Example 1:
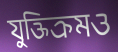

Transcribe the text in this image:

যুক্তিক্রমও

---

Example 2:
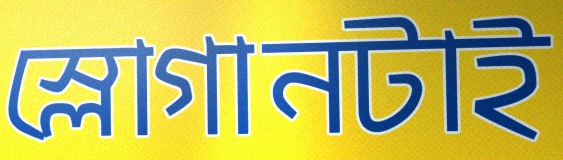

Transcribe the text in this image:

স্লোগানটাই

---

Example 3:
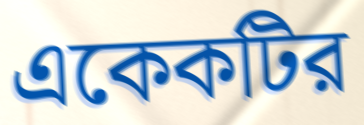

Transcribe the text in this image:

একেকটির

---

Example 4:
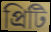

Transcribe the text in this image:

প্রিটি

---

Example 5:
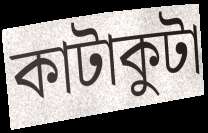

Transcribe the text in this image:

কাটাকুটা